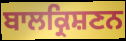
ਬਾਲਕ੍ਰਿਸ਼ਣਨ